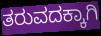
ತರುವದಕ್ಕಾಗಿ